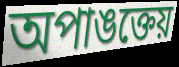
অপাঙক্তেয়